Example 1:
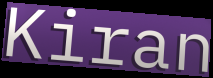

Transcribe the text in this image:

Kiran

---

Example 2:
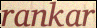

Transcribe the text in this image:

rankar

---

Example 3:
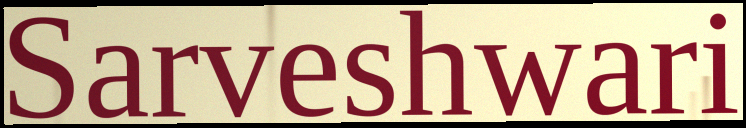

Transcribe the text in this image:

Sarveshwari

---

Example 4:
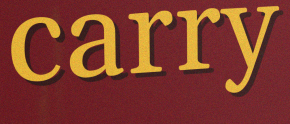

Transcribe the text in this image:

carry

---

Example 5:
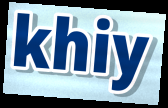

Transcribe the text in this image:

khiy